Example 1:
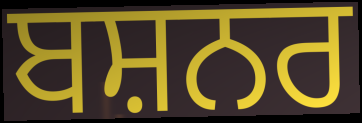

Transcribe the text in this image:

ਬਸ਼ਨਰ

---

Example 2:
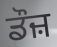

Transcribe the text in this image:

ਡੌਜ਼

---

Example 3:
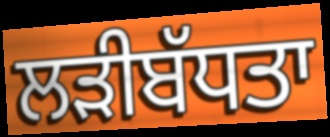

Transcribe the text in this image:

ਲੜੀਬੱਧਤਾ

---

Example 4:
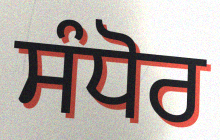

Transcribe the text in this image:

ਸੰਧੋਰ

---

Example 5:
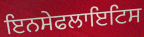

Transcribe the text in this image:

ਇਨਸੇਫਲਾਇਟਿਸ